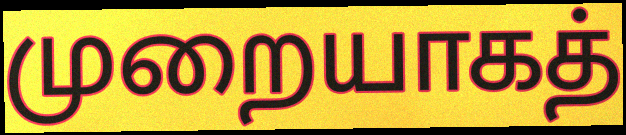
முறையாகத்